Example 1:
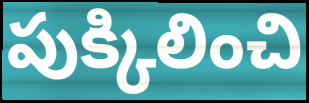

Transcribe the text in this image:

పుక్కిలించి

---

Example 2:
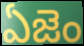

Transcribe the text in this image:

ఏజెం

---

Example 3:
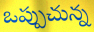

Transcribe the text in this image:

ఒప్పుచున్న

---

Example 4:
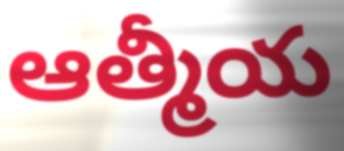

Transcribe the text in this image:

ఆత్మీయ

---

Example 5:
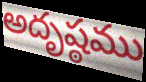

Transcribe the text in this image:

అదృష్ఠము